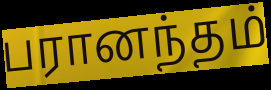
பரானந்தம்